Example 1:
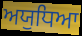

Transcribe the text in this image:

ਅਯੁਧਿਆ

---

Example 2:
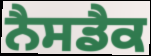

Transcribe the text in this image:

ਨੈਸਡੈਕ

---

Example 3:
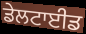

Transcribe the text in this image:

ਡੇਲਟਾਈਡ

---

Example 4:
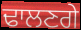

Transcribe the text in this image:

ਢਾਲਣਗੇ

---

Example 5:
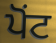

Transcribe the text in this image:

ਪੋਂਟ